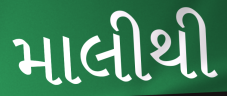
માલીથી